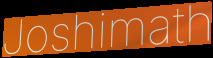
Joshimath